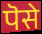
पॆसे